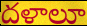
దళాలూ